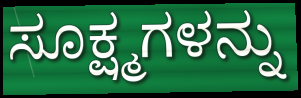
ಸೂಕ್ಷ್ಮಗಳನ್ನು